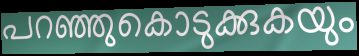
പറഞ്ഞുകൊടുക്കുകയും